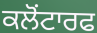
ਕਲੋਂਟਾਰਫ